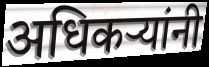
अधिकऱ्यांनी